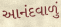
આનંદવાળું